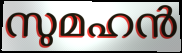
സുമഹൻ